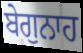
ਬੇਗੁਨਾਹ